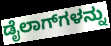
ಡೈಲಾಗ್‌ಗಳನ್ನು